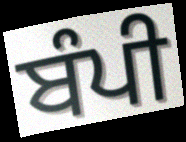
ਬੰਪੀ